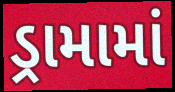
ડ્રામામાં